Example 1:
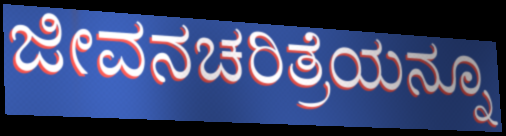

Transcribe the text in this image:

ಜೀವನಚರಿತ್ರೆಯನ್ನೂ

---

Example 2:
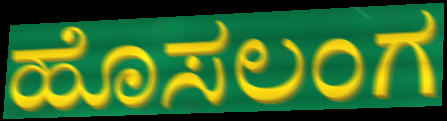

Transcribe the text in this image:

ಹೊಸಲಂಗ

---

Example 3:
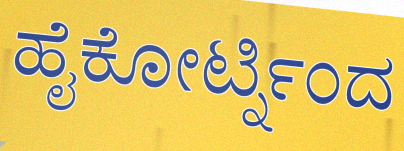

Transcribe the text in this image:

ಹೈಕೋರ್ಟ್ನಿಂದ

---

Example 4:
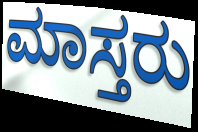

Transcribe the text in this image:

ಮಾಸ್ತರು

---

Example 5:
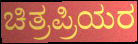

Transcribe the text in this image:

ಚಿತ್ರಪ್ರಿಯರ